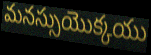
మనస్సుయొక్కయు